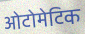
ओटोमेटिक